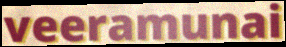
veeramunai